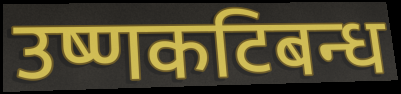
उष्णकटिबन्ध